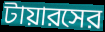
টায়ারসের